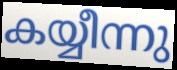
കയ്യീന്നു